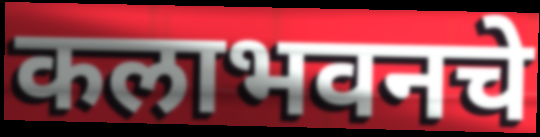
कलाभवनचे